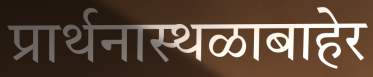
प्रार्थनास्थळाबाहेर